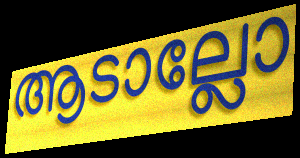
ആടാല്ലോ